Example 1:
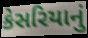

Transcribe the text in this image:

કેસરિયાનું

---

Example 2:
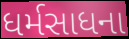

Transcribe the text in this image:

ધર્મસાધના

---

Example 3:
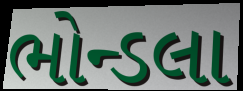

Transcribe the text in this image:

ભોન્ડલા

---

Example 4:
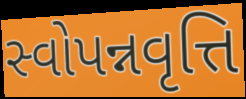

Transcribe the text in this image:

સ્વોપન્નવૃત્તિ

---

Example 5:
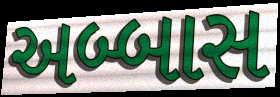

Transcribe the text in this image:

અબ્બાસ